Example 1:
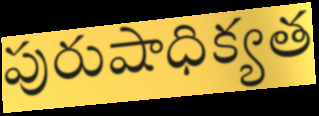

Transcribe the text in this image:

పురుషాధిక్యత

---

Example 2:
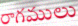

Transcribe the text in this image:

రాగములు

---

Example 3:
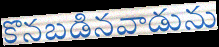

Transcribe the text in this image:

కొనబడినవాడును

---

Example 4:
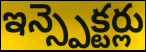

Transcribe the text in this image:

ఇన్స్పెక్టర్లు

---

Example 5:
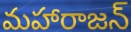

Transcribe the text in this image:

మహారాజన్